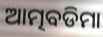
ଆତ୍ମବଡିମା